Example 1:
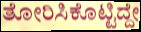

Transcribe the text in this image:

ತೋರಿಸಿಕೊಟ್ಟಿದ್ದೇ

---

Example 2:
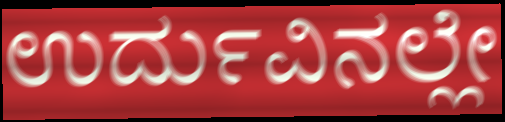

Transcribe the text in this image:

ಉರ್ದುವಿನಲ್ಲೇ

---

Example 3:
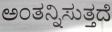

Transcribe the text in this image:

ಅಂತನ್ನಿಸುತ್ತದೆ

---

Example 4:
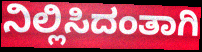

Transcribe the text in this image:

ನಿಲ್ಲಿಸಿದಂತಾಗಿ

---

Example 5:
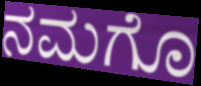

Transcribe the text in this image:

ನಮಗೊ